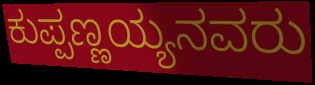
ಕುಪ್ಪಣ್ಣಯ್ಯನವರು